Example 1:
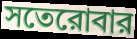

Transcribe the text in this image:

সতেরোবার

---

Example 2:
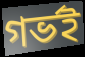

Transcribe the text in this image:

গর্ভই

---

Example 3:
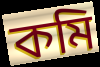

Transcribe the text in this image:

কমি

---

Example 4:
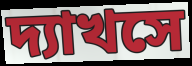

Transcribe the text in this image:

দ্যাখসে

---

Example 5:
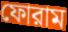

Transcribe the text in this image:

ফোরাম